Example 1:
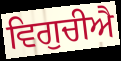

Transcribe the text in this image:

ਵਿਗੁਚੀਐ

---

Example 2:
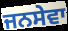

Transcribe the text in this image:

ਜਨਸੇਵਾ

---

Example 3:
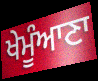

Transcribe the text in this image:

ਖੇਮੂੰਆਣਾ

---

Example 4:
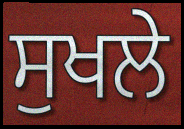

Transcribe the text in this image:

ਸੁਖਲੇ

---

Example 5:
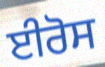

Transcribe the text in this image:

ਈਰੋਸ